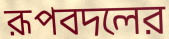
রূপবদলের